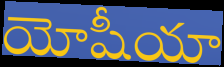
యోషీయా